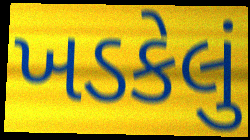
ખડકેલું